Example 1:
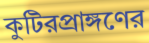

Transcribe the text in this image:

কুটিরপ্রাঙ্গণের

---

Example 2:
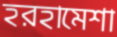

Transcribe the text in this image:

হরহামেশা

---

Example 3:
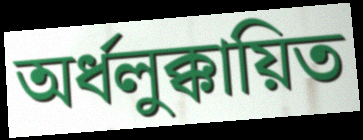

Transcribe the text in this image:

অর্ধলুক্কায়িত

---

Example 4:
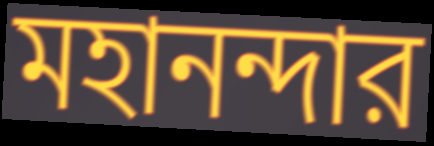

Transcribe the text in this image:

মহানন্দার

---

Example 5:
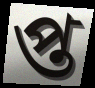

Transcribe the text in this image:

প্ত